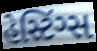
હેસ્ટિંગ્સ